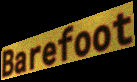
Barefoot